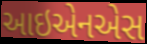
આઇએનએસ